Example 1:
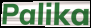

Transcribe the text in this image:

Palika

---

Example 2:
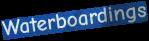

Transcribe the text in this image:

Waterboardings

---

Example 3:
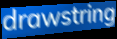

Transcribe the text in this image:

drawstring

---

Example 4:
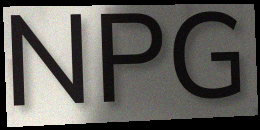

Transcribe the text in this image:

NPG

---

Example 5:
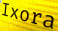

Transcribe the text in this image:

Ixora